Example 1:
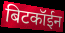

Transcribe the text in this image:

बिटकॉईन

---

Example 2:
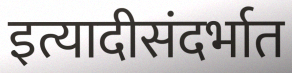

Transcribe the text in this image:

इत्यादीसंदर्भात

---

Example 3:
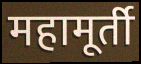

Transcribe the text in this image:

महामूर्ती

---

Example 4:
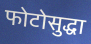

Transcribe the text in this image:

फोटोसुद्धा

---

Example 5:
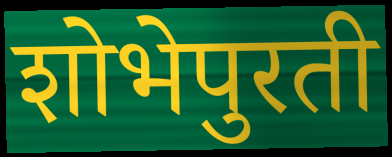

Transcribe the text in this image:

शोभेपुरती